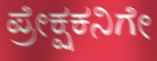
ಪ್ರೇಕ್ಷಕನಿಗೇ